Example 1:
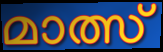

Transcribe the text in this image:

മാത്സ്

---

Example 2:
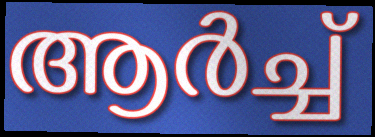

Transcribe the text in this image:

ആർച്ച്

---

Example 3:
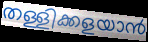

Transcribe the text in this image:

തള്ളിക്കളയാൻ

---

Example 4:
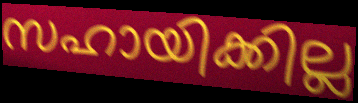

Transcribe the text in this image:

സഹായിക്കില്ല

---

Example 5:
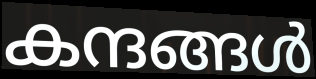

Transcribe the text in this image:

കന്ദങ്ങൾ